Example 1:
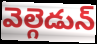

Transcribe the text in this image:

వెల్గెడున్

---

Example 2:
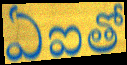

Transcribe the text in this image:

ఏఐతో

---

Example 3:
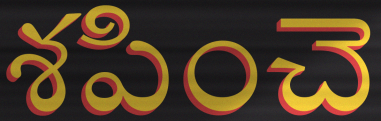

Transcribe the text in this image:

శపించె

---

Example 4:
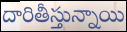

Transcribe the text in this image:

దారితీస్తున్నాయి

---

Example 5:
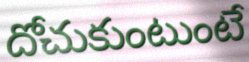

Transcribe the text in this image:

దోచుకుంటుంటే